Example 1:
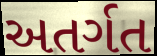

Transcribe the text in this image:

અતર્ગત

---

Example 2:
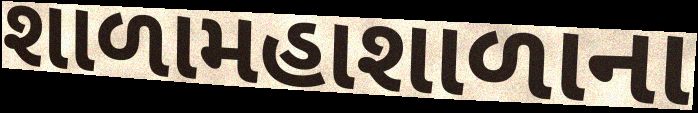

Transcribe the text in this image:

શાળામહાશાળાના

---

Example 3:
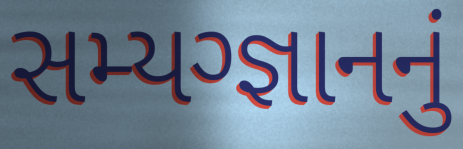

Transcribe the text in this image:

સમ્યગ્જ્ઞાનનું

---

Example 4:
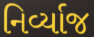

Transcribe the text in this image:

નિર્વ્યાજ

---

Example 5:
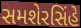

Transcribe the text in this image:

સમશેરસિંહે